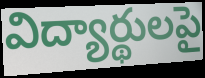
విద్యార్థులపై